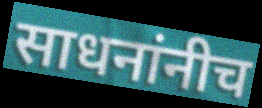
साधनांनीच